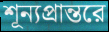
শূন্যপ্রান্তরে